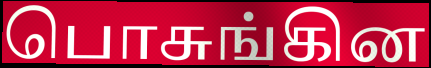
பொசுங்கின